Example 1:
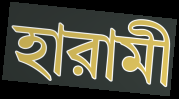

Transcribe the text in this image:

হারামী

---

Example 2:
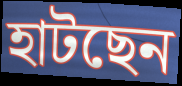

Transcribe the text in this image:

হাটছেন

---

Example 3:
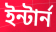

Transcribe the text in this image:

ইন্টার্ন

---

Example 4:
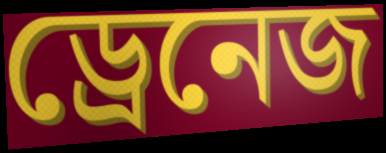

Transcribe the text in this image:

ড্রেনেজ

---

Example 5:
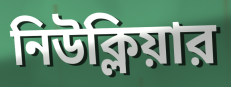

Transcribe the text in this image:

নিউক্লিয়ার